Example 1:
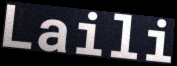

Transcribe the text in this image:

Laili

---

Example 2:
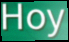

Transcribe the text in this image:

Hoy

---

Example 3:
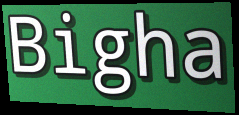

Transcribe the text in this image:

Bigha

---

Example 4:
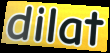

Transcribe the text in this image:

dilat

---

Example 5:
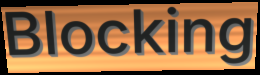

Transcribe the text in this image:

Blocking